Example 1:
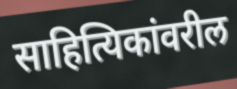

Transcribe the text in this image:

साहित्यिकांवरील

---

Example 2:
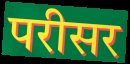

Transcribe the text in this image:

परीसर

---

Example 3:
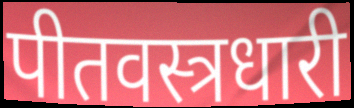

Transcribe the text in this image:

पीतवस्त्रधारी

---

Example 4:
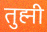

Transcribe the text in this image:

तुह्मी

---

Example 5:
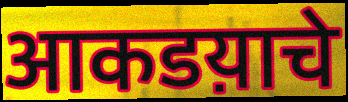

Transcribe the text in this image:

आकडय़ाचे